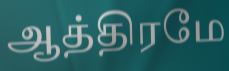
ஆத்திரமே